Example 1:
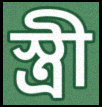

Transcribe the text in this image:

স্ত্রী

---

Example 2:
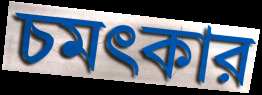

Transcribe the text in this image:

চমৎকার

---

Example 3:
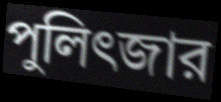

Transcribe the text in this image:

পুলিৎজার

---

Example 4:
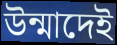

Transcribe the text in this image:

উন্মাদেই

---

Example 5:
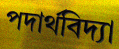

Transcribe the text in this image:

পদার্থবিদ্যা